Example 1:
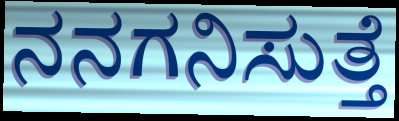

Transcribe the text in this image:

ನನಗನಿಸುತ್ತೆ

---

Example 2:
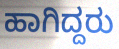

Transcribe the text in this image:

ಹಾಗಿದ್ದರು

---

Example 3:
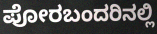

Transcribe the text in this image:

ಪೋರಬಂದರಿನಲ್ಲಿ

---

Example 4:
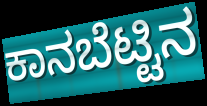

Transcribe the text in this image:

ಕಾನಬೆಟ್ಟಿನ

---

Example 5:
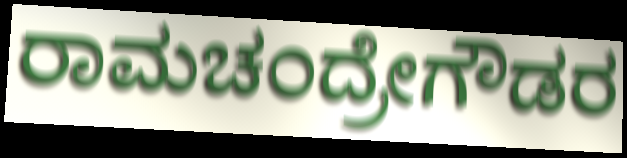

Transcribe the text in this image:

ರಾಮಚಂದ್ರೇಗೌಡರ